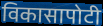
विकासापोटी